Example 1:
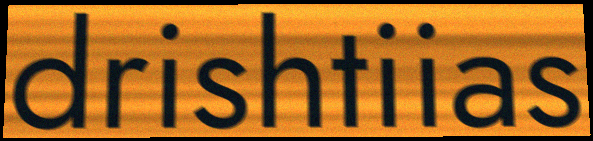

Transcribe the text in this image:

drishtiias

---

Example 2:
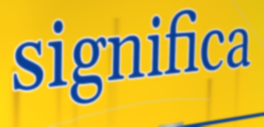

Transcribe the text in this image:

significa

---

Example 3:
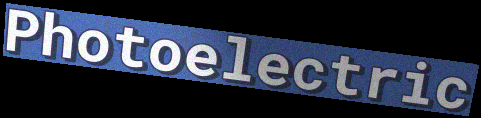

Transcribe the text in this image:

Photoelectric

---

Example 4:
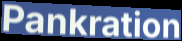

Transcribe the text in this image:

Pankration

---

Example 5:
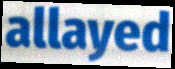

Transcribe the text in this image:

allayed